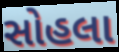
સોહલા